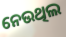
ନେଉଥିଲ